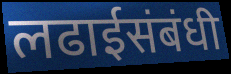
लढाईसंबंधी